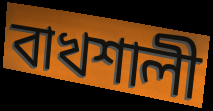
বাখশালী